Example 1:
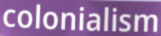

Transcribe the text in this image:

colonialism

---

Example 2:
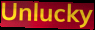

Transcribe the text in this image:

Unlucky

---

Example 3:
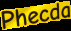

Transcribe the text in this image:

Phecda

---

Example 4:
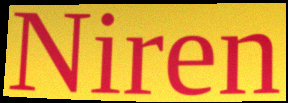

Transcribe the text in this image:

Niren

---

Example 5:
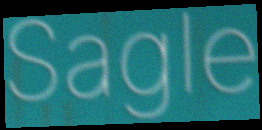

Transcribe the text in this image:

Sagle